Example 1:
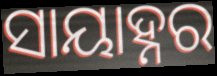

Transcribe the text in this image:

ସାୟାହ୍ନର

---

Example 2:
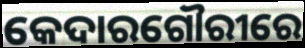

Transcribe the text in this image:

କେଦାରଗୌରୀରେ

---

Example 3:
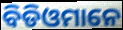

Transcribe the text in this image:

ବିଡିଓମାନେ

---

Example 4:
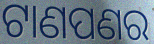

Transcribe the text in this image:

ଟାଣପଣର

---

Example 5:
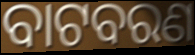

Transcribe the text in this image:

ବାଟବରଣ